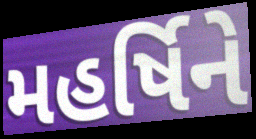
મહર્ષિને